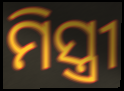
ମିସ୍ତ୍ରୀ